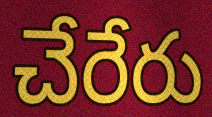
చేరేరు